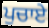
ਪੁਚਾਏ